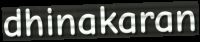
dhinakaran